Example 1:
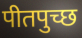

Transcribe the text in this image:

पीतपुच्छ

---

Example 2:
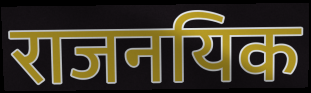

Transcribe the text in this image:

राजनयिक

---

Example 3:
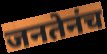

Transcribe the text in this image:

जनतेनंच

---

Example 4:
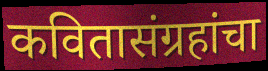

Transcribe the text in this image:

कवितासंग्रहांचा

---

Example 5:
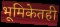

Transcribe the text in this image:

भूमिकेतही